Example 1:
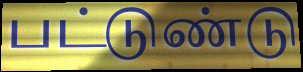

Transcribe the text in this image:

பட்டுண்டு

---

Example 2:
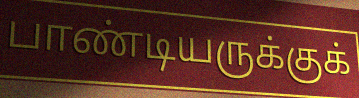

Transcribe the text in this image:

பாண்டியருக்குக்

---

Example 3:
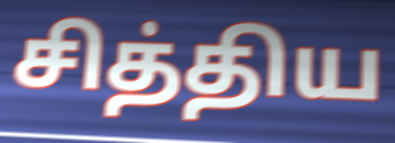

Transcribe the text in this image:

சித்திய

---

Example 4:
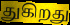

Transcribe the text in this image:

துகிறது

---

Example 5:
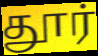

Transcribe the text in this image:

தூர்